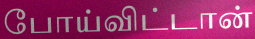
போய்விட்டான்